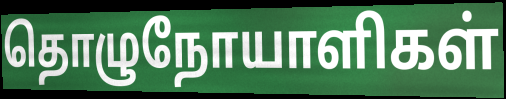
தொழுநோயாளிகள்